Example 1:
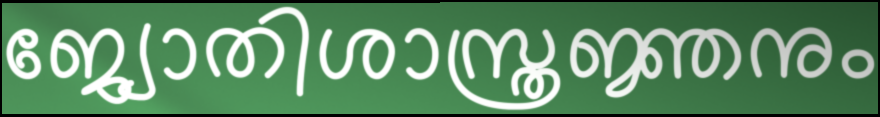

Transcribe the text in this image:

ജ്യോതിശാസ്ത്രജ്ഞനും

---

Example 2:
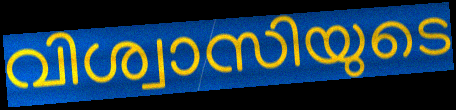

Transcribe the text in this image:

വിശ്വാസിയുടെ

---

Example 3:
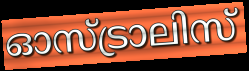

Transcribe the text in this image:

ഓസ്ട്രാലിസ്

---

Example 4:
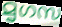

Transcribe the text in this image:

മൃഗസ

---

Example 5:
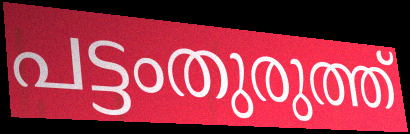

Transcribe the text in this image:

പട്ടംതുരുത്ത്